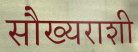
सौख्यराशी